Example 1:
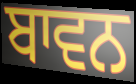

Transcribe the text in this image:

ਬਾਵਨ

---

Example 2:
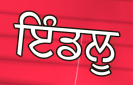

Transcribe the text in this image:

ਇੰਡਲੂ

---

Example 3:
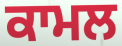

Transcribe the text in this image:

ਕਾਮਲ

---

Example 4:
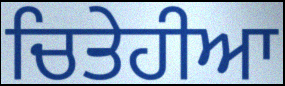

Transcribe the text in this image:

ਚਿਤੇਹੀਆ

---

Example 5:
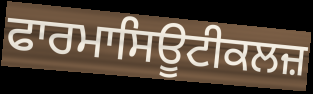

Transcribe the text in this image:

ਫਾਰਮਾਸਿਊਟੀਕਲਜ਼